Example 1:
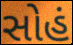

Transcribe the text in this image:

સોહં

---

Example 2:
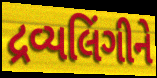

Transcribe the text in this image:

દ્રવ્યલિંગીને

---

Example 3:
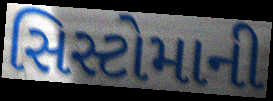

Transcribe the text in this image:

સિસ્ટોમાની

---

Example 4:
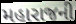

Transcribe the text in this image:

મહારાજની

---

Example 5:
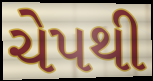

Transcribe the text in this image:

ચેપથી